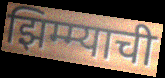
झिम्म्याची